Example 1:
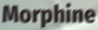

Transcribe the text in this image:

Morphine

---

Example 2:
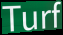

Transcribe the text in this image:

Turf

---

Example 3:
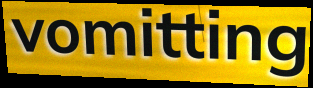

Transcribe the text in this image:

vomitting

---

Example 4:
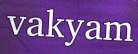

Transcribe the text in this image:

vakyam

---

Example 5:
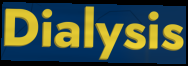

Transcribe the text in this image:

Dialysis